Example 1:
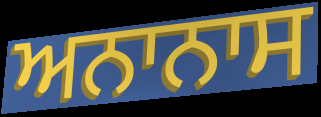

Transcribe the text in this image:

ਅਨਾਨਾਸ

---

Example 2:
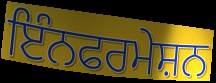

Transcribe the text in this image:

ਇੰਨਫਰਮੇਸ਼ਨ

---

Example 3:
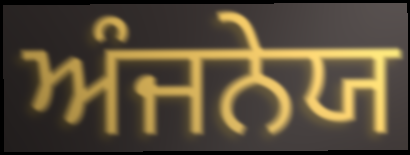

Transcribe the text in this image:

ਅੰਜਨੇਯ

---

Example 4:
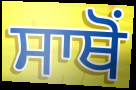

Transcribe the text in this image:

ਸਾਥੋਂ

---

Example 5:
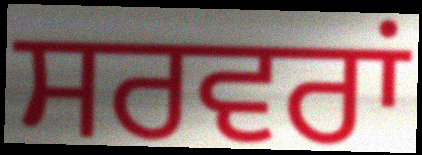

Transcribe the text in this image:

ਸਰਵਰਾਂ